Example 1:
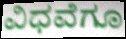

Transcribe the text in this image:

ವಿಧವೆಗೂ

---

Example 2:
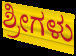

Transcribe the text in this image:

ಶ್ರೀಗಳು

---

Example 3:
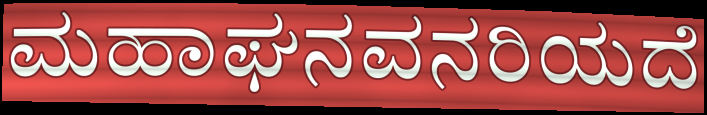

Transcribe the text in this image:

ಮಹಾಘನವನರಿಯದೆ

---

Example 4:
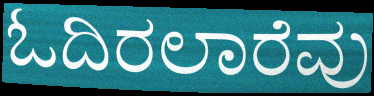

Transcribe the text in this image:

ಓದಿರಲಾರೆವು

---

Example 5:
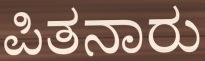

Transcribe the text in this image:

ಪಿತನಾರು